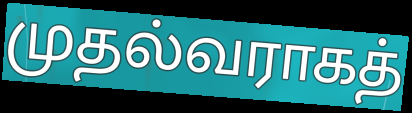
முதல்வராகத்